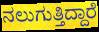
ನಲುಗುತ್ತಿದ್ದಾರೆ